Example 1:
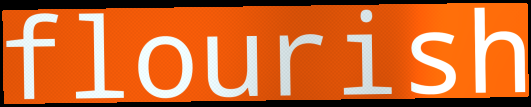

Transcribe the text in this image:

flourish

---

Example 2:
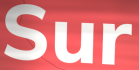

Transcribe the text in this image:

Sur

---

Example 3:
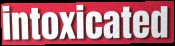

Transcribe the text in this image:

intoxicated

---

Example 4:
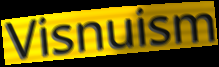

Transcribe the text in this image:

Visnuism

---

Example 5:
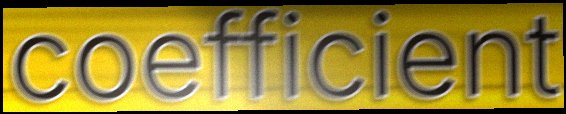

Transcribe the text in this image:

coefficient